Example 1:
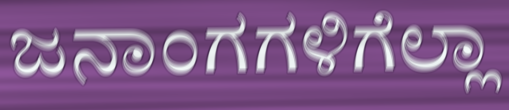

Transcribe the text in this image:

ಜನಾಂಗಗಳಿಗೆಲ್ಲಾ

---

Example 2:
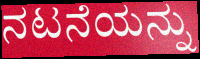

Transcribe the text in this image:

ನಟನೆಯನ್ನು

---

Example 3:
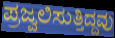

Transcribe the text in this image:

ಪ್ರಜ್ವಲಿಸುತ್ತಿದ್ದವು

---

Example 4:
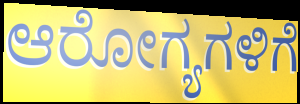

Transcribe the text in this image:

ಆರೋಗ್ಯಗಳಿಗೆ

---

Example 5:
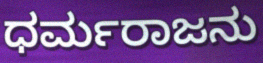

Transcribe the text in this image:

ಧರ್ಮರಾಜನು